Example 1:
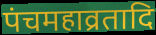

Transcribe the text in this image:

पंचमहाव्रतादि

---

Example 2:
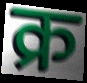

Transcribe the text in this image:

क्र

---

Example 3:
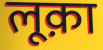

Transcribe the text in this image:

लूक़ा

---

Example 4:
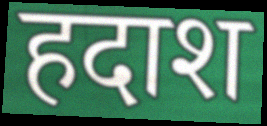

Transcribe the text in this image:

हदाश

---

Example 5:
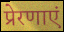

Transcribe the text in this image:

प्रेरणाएं